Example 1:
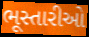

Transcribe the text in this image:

ભૂસ્તારીઓ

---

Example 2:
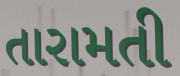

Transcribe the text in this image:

તારામતી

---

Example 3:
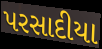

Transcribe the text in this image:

પરસાદીયા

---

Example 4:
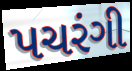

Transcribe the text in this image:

પચરંગી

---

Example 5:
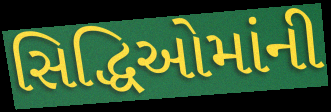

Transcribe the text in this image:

સિદ્ધિઓમાંની